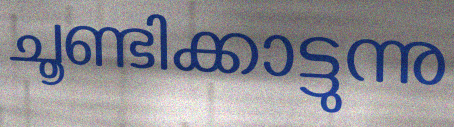
ചൂണ്ടിക്കാട്ടുന്നു